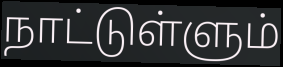
நாட்டுள்ளும்